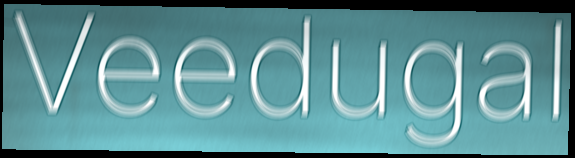
Veedugal